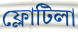
ফ্লোটিলা